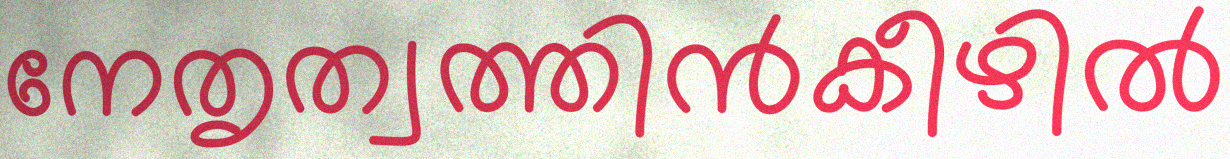
നേതൃത്വത്തിൻകീഴിൽ